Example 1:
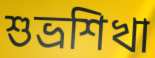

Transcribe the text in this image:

শুভ্রশিখা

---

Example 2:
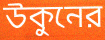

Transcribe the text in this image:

উকুনের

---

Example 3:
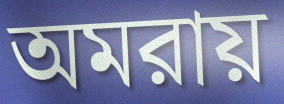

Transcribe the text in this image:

অমরায়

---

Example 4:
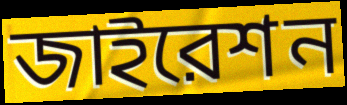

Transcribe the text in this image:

জাইরেশন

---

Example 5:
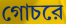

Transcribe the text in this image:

গোচরে